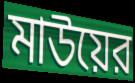
মাউয়ের